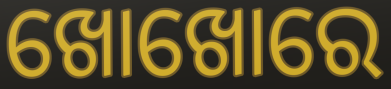
ଖୋଖୋରେ